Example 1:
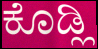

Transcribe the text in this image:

ಕೊಡ್ಲಿ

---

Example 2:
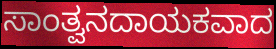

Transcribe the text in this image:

ಸಾಂತ್ವನದಾಯಕವಾದ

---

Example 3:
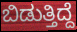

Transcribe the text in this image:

ಬಿಡುತ್ತಿದ್ದೆ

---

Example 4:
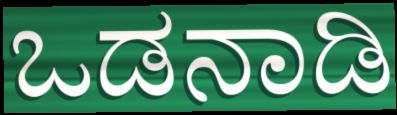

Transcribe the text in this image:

ಒಡನಾಡಿ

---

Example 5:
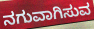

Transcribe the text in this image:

ನಗುವಾಗಿಸುವ